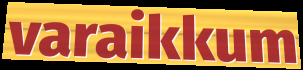
varaikkum